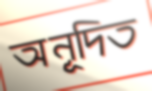
অনূদিত